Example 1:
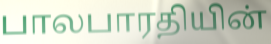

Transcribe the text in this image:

பாலபாரதியின்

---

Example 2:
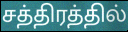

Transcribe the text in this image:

சத்திரத்தில்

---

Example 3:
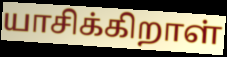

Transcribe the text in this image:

யாசிக்கிறாள்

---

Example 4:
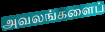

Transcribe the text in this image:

அவலங்களைப்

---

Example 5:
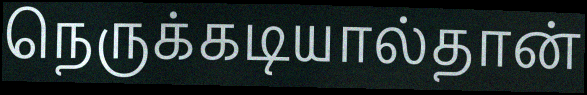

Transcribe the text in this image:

நெருக்கடியால்தான்